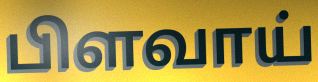
பிளவாய்